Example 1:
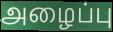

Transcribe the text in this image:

அழைப்பு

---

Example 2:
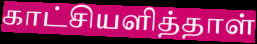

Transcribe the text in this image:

காட்சியளித்தாள்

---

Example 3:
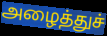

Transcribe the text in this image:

அழைத்துச்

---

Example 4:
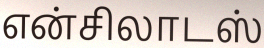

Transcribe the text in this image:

என்சிலாடஸ்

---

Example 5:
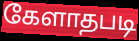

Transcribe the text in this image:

கேளாதபடி